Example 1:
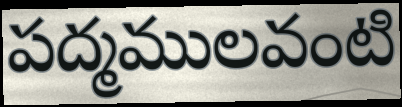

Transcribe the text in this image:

పద్మములవంటి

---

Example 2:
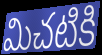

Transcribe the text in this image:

మిచటికి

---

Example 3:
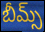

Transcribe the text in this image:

బీమ్స్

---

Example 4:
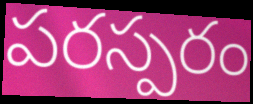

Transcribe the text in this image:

పరస్పరం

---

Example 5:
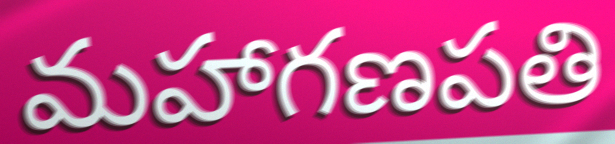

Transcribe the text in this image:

మహాగణపతి